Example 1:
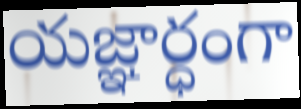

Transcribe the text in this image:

యజ్ఞార్ధంగా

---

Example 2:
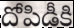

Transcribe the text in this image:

దోపిడీకి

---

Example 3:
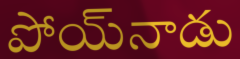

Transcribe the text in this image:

పోయ్‌నాడు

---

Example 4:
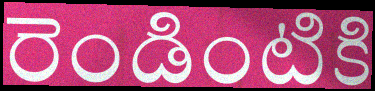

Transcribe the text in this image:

రెండింటికి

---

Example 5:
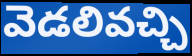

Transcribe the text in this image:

వెడలివచ్చి